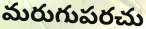
మరుగుపరచు